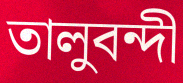
তালুবন্দী